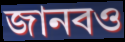
জানবও